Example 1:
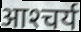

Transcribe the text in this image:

आश्चर्य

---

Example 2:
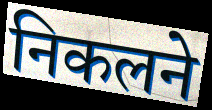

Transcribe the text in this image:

निकलने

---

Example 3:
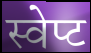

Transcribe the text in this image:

स्वेप्ट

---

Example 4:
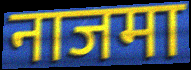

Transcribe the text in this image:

नाजमा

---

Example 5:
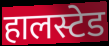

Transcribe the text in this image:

हालस्टेड